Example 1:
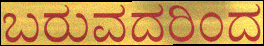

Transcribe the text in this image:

ಬರುವದರಿಂದ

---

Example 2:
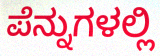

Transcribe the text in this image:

ಪೆನ್ನುಗಳಲ್ಲಿ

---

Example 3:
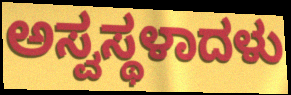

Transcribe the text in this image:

ಅಸ್ವಸ್ಥಳಾದಳು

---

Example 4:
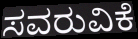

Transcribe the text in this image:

ಸವರುವಿಕೆ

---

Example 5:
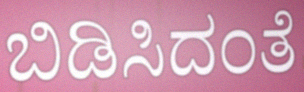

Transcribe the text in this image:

ಬಿಡಿಸಿದಂತೆ